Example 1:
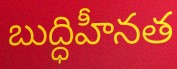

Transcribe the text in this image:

బుద్ధిహీనత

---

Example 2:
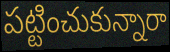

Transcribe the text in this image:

పట్టించుకున్నారా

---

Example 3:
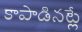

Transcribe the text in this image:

కాపాడినట్లే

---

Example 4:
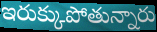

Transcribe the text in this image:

ఇరుక్కుపోతున్నారు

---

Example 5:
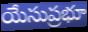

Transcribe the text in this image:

యేసుప్రభూ